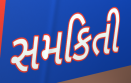
સમકિતી